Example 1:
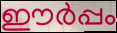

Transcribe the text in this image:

ഈർപ്പം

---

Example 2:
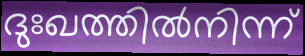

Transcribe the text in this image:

ദുഃഖത്തിൽനിന്ന്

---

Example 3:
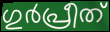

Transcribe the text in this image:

ഗുർപ്രീത്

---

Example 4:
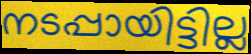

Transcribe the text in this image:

നടപ്പായിട്ടില്ല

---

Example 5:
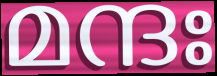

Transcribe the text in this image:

മന്ദഃ